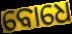
ବୋଧେ